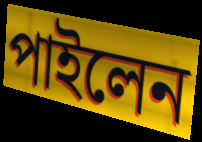
পাইলেন